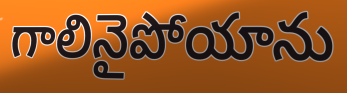
గాలినైపోయాను